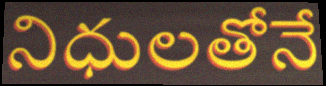
నిధులతోనే